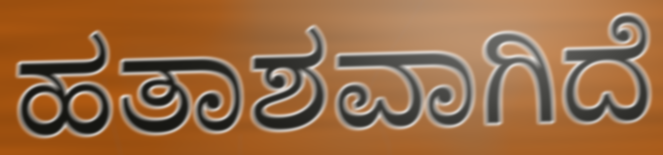
ಹತಾಶವಾಗಿದೆ